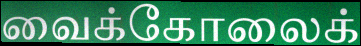
வைக்கோலைக்